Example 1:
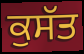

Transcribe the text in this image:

ਕੁਸੱਤ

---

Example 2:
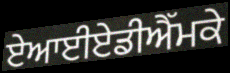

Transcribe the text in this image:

ਏਆਈਏਡੀਐੱਮਕੇ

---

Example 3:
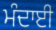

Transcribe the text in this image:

ਮੰਦਾਈ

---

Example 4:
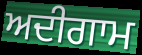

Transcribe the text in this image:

ਅਦੀਗਾਮ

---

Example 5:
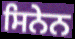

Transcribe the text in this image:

ਸਿਨੇਨ